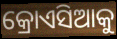
କ୍ରୋଏସିଆକୁ